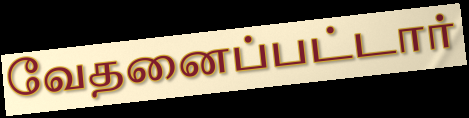
வேதனைப்பட்டார்